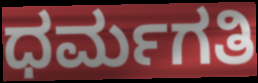
ಧರ್ಮಗತಿ